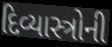
દિવ્યાસ્ત્રોની